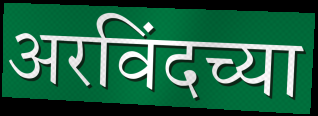
अरविंदच्या